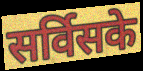
सर्विसके